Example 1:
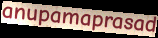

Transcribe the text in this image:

anupamaprasad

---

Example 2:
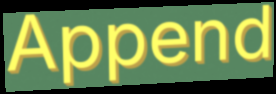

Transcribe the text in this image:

Append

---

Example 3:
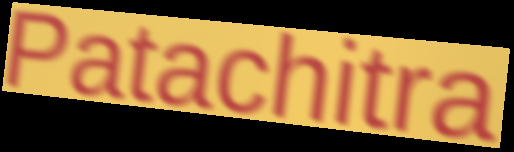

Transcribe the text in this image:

Patachitra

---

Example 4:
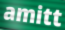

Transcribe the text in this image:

amitt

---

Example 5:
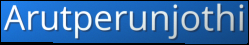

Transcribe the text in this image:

Arutperunjothi